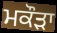
ਮਕੌੜਾ